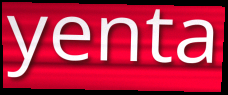
yenta